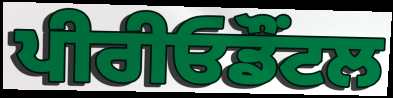
ਪੀਰੀਓਡੌਂਟਲ